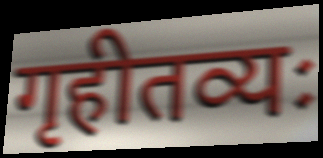
गृहीतव्यः